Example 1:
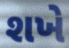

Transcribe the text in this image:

શખે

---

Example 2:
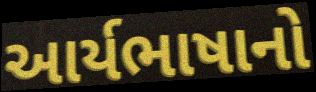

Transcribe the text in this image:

આર્યભાષાનો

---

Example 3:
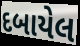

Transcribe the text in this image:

દબાયેલ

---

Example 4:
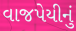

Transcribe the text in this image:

વાજપેયીનું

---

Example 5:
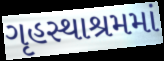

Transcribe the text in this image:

ગૃહસ્થાશ્રમમાં